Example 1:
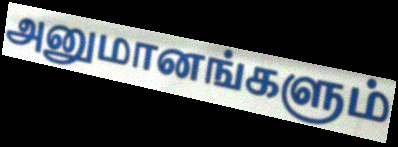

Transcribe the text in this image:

அனுமானங்களும்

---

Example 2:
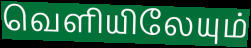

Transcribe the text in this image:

வெளியிலேயும்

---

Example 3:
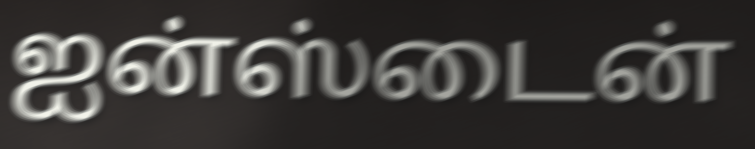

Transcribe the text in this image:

ஐன்ஸ்டைன்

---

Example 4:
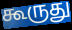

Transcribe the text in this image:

கூருது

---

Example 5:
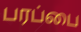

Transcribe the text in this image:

பரப்பை